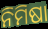
ନିମିଷା